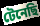
টেনেছি